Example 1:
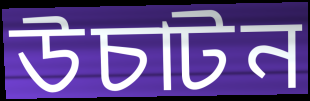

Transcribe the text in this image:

উচাটন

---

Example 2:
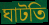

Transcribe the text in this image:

ঘাটতি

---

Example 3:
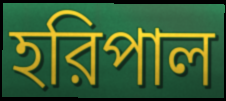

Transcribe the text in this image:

হরিপাল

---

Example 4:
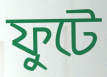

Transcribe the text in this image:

ফুটে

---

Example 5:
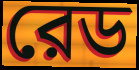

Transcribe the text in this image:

রেড